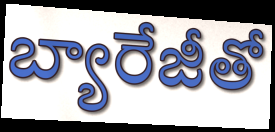
బ్యారేజీతో